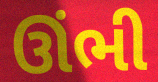
ઊંભી